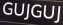
GUJGUJ